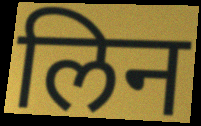
लिन